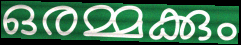
ഒരമ്മക്കും